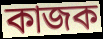
কাজক